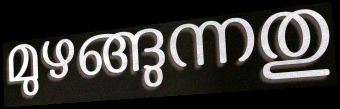
മുഴങ്ങുന്നതു